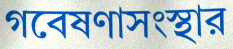
গবেষণাসংস্থার